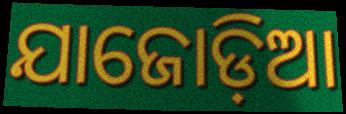
ଯାଜୋଡ଼ିଆ